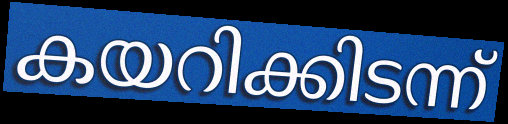
കയറിക്കിടന്ന്